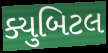
ક્યુબિટલ